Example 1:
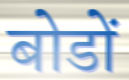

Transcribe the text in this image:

बोडों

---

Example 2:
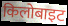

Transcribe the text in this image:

किलोबाइट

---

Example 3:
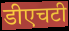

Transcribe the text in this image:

डीएचटी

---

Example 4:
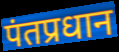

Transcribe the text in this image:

पंतप्रधान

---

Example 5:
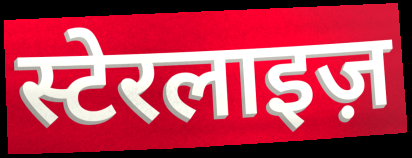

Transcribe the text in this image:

स्टेरलाइज़